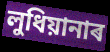
লুধিয়ানাৰ